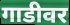
गाडीवर